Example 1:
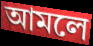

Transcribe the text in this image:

আমলে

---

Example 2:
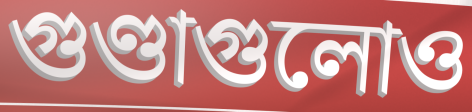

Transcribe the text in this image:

গুণ্ডাগুলোও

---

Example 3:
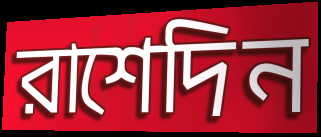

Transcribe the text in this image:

রাশেদিন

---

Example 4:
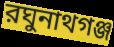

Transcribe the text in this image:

রঘুনাথগঞ্জ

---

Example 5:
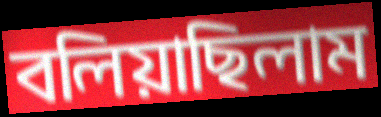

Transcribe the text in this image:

বলিয়াছিলাম